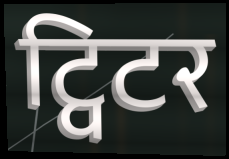
ट्विटर